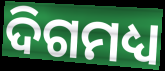
ଦିଗମଧ୍ୟ